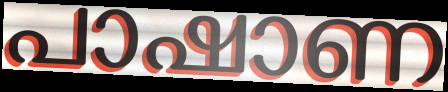
പാഷാണ